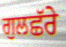
ਗੁਲਛੱਰੇ